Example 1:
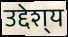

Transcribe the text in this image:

उद्देश्य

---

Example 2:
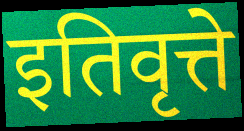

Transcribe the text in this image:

इतिवृत्ते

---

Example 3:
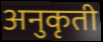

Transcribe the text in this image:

अनुकृती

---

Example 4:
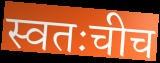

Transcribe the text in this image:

स्वतःचीच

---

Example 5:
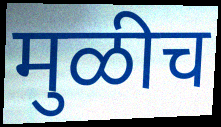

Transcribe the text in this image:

मुळीच